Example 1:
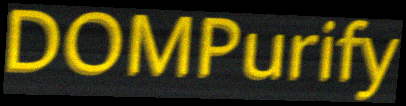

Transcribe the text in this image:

DOMPurify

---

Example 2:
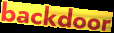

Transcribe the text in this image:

backdoor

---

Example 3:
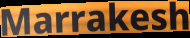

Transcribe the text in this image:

Marrakesh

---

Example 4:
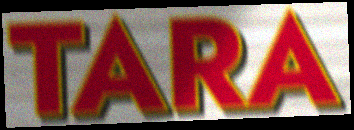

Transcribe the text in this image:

TARA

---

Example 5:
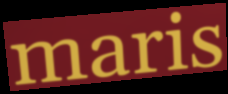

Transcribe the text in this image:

maris